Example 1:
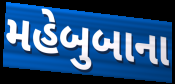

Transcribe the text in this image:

મહેબુબાના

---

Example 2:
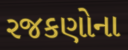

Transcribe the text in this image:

રજકણોના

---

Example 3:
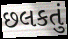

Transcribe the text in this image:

છલકતું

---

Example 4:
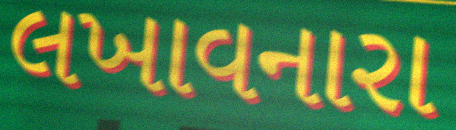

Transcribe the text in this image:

લખાવનારા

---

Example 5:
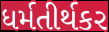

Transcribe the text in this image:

ધર્મતીર્થકર